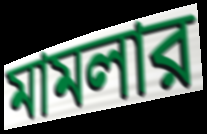
মামলার